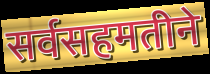
सर्वसहमतीने